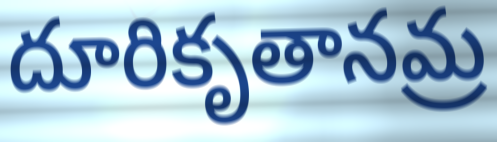
దూరికృతానమ్ర